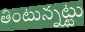
తింటున్నట్టు